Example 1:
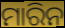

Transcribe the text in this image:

ମାରିନ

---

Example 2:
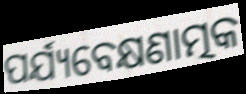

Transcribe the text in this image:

ପର୍ଯ୍ୟବେକ୍ଷଣାତ୍ମକ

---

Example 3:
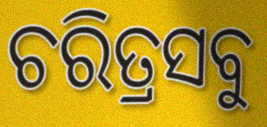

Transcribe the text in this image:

ଚରିତ୍ରସବୁ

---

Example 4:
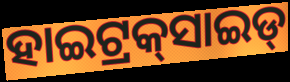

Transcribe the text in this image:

ହାଇଟ୍ରକ୍‌ସାଇଡ୍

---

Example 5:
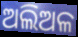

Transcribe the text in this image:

ଅଲିଅଳ